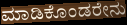
ಮಾಡಿಕೊಂಡರೇನು